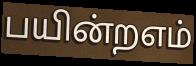
பயின்றஎம்